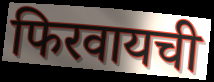
फिरवायची